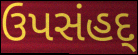
ઉપસંહદ્